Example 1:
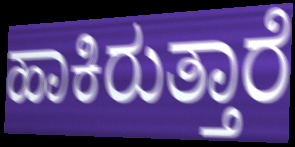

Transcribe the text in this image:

ಹಾಕಿರುತ್ತಾರೆ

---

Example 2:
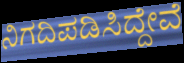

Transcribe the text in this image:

ನಿಗದಿಪಡಿಸಿದ್ದೇವೆ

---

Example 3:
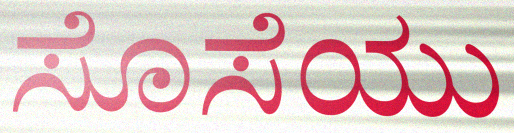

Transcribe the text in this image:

ಸೊಸೆಯು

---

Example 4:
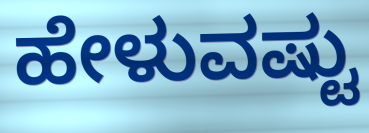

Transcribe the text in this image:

ಹೇಳುವಷ್ಟು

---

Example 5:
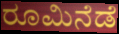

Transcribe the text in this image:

ರೂಮಿನೆಡೆ